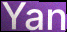
Yan